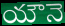
యౌనె